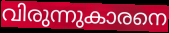
വിരുന്നുകാരനെ